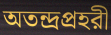
অতন্দ্রপ্রহরী